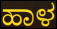
ಹಾಳ